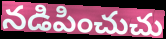
నడిపించుచు